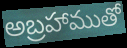
అబ్రహాముతో